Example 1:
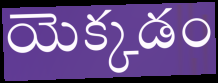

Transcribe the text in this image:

యెక్కడం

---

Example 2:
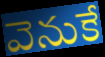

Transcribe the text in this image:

వెనుకే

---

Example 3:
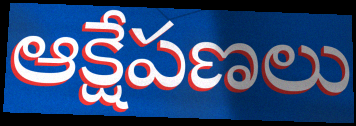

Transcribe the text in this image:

ఆక్షేపణలు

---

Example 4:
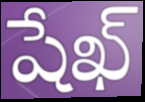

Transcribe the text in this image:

షేఖ్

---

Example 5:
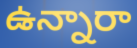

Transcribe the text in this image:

ఉన్నారా